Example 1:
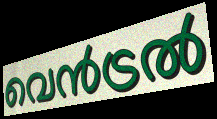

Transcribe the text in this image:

വെൻട്രൽ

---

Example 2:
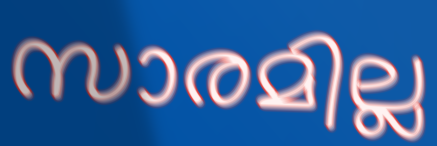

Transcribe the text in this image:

സാരമില്ല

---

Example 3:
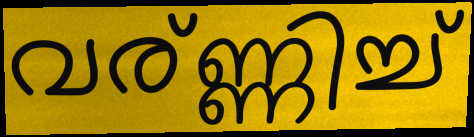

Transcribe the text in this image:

വര്ണ്ണിച്ച്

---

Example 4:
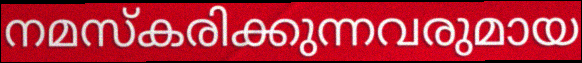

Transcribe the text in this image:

നമസ്കരിക്കുന്നവരുമായ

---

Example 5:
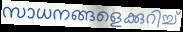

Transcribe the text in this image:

സാധനങ്ങളെക്കുറിച്ച്